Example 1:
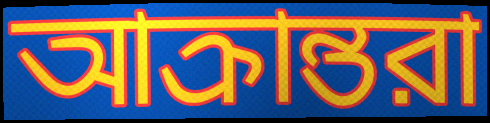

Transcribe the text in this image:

আক্রান্তরা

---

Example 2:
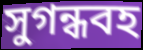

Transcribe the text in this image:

সুগন্ধবহ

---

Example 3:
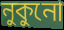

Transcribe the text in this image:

নুকুনো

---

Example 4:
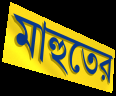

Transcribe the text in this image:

মাহুতের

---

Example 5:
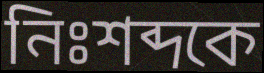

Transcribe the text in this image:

নিঃশব্দকে